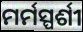
ମର୍ମସ୍ପର୍ଶୀ